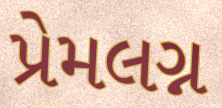
પ્રેમલગ્ન